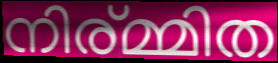
നിര്മ്മിത